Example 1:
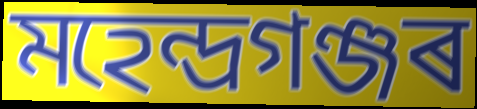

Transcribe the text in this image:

মহেন্দ্ৰগঞ্জৰ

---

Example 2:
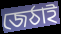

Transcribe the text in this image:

জেঠাই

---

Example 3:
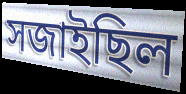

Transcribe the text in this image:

সজাইছিল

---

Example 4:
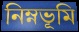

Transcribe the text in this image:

নিম্নভূমি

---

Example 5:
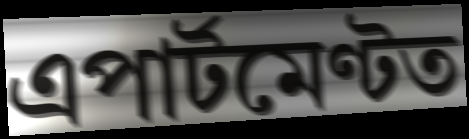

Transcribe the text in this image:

এপাৰ্টমেণ্টত